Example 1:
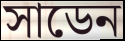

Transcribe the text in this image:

সাডেন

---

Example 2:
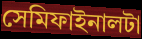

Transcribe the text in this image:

সেমিফাইনালটা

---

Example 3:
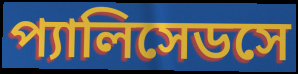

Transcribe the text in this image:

প্যালিসেডসে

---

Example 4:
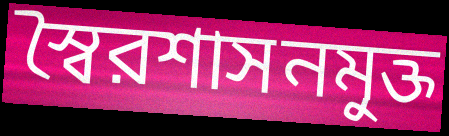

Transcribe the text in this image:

স্বৈরশাসনমুক্ত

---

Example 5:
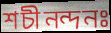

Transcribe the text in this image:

শচীনন্দনঃ